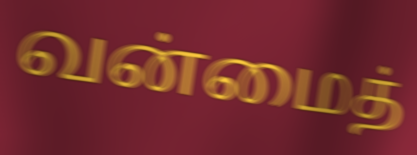
வன்மைத்